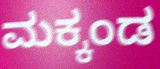
ಮಕ್ಕಂಡ